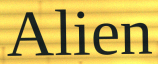
Alien